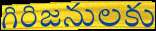
గిరిజనులకు